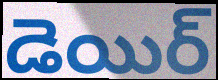
డెయిర్